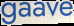
gaave